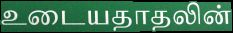
உடையதாதலின்